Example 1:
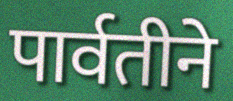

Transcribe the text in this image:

पार्वतीने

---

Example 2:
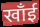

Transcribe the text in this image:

खाँई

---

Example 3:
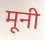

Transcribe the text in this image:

मूनी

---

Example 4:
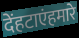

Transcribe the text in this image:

देंहटाएंहमारे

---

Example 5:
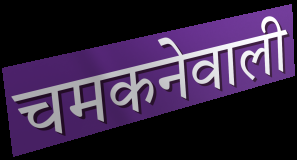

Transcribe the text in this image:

चमकनेवाली